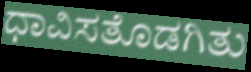
ಧಾವಿಸತೊಡಗಿತು